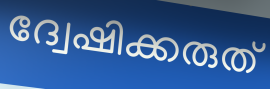
ദ്വേഷിക്കരുത്